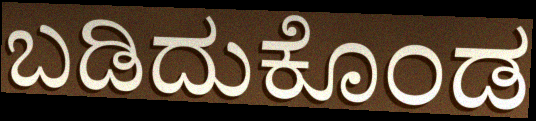
ಬಡಿದುಕೊಂಡ